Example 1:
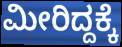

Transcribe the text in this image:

ಮೀರಿದ್ದಕ್ಕೆ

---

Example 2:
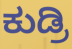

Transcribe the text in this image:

ಕುಡ್ರಿ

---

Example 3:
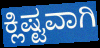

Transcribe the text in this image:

ಕ್ಲಿಷ್ಟವಾಗಿ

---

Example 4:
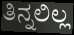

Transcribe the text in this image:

ತಿನ್ನಲಿಲ್ಲ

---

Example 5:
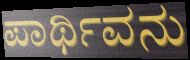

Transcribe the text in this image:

ಪಾರ್ಥಿವನು